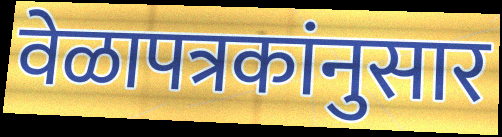
वेळापत्रकांनुसार